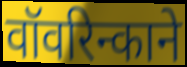
वॉवरिन्काने